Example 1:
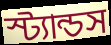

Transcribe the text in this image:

স্ট্যান্ডস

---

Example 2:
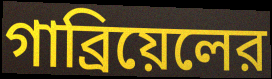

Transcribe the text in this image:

গাব্রিয়েলের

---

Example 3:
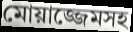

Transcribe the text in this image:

মোয়াজ্জেমসহ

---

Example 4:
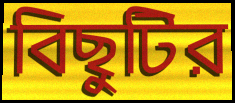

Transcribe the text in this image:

বিছুটির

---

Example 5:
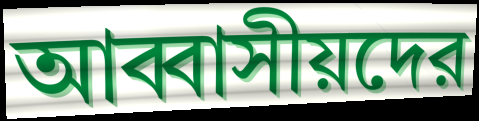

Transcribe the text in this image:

আব্বাসীয়দের